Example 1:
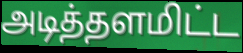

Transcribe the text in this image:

அடித்தளமிட்ட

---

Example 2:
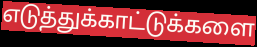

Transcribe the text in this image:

எடுத்துக்காட்டுக்களை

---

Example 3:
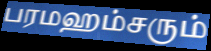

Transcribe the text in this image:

பரமஹம்சரும்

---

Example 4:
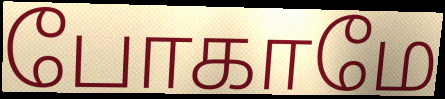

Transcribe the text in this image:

போகாமே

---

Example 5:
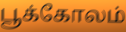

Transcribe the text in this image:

பூக்கோலம்